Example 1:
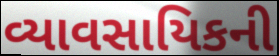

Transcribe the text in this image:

વ્યાવસાયિકની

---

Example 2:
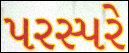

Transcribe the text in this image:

પરસ્પરે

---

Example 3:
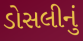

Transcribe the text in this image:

ડોસલીનું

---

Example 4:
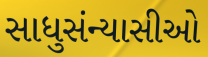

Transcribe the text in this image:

સાધુસંન્યાસીઓ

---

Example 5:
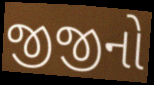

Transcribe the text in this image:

જીજીનો